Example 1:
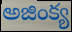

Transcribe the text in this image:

అజింక్య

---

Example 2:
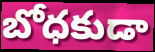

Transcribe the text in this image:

బోధకుడా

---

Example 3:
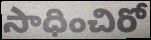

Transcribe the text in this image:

సాధించిరో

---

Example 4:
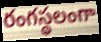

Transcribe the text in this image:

రంగస్థలంగా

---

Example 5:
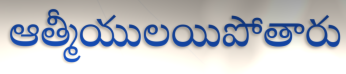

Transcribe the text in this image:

ఆత్మీయులయిపోతారు